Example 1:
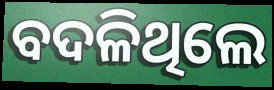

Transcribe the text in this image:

ବଦଳିଥିଲେ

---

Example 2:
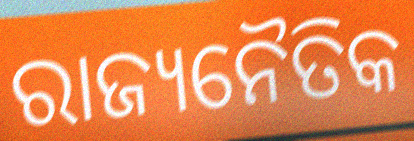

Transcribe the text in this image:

ରାଜ୍ୟନୈତିକ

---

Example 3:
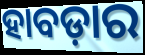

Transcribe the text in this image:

ହାବଡ଼ାର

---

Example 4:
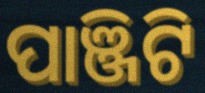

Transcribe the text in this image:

ପାଞ୍ଜିଟି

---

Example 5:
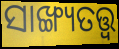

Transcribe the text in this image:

ସାଙ୍ଖ୍ୟତତ୍ତ୍ଵ